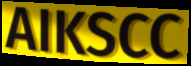
AIKSCC